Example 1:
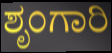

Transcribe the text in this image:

ಶೃಂಗಾರಿ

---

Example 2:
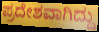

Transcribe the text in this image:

ಪ್ರದೇಶವಾಗಿದ್ದು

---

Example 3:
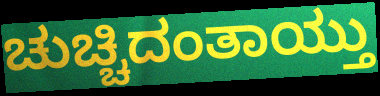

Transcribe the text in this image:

ಚುಚ್ಚಿದಂತಾಯ್ತು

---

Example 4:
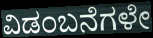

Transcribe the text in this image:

ವಿಡಂಬನೆಗಳೇ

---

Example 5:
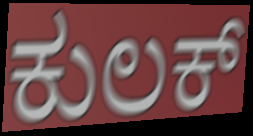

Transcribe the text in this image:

ಕುಲಕ್